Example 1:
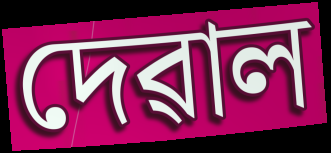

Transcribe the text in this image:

দেৱাল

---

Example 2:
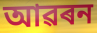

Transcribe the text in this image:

আৱৰন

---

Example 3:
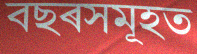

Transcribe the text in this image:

বছৰসমূহত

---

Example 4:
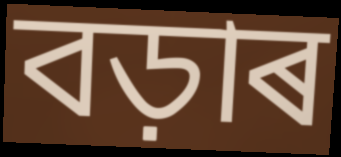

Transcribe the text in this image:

বড়াৰ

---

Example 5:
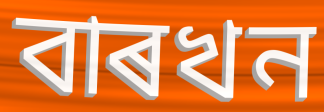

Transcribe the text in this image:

বাৰখন